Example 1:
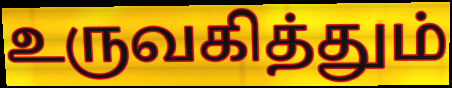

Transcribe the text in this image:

உருவகித்தும்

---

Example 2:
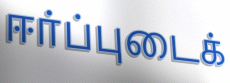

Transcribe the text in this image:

ஈர்ப்புடைக்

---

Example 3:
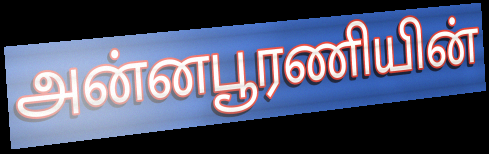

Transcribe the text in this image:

அன்னபூரணியின்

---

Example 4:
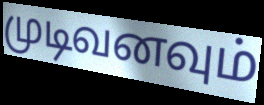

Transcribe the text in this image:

முடிவனவும்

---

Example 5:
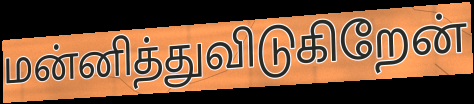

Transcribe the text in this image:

மன்னித்துவிடுகிறேன்